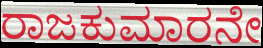
ರಾಜಕುಮಾರನೇ